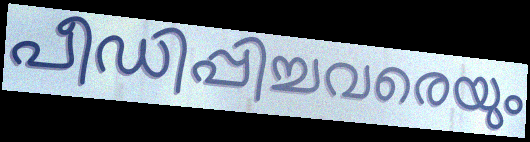
പീഡിപ്പിച്ചവരെയും